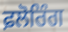
ਫ਼ਲੋਰਿੰਗ